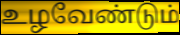
உழவேண்டும்